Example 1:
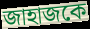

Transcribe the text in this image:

জাহাজকে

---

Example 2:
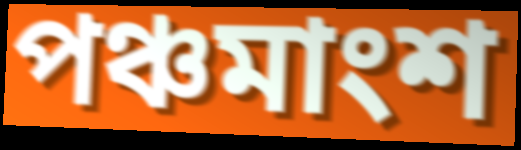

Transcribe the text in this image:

পঞ্চমাংশ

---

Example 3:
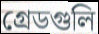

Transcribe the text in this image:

গ্রেডগুলি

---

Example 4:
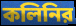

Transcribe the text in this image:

কলিনির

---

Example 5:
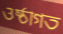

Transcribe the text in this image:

ওষ্ঠাগত